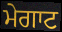
ਮੇਗਾਟ